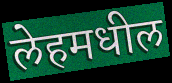
लेहमधील